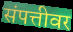
संपत्तीवर